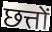
छत्तों